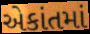
એકાંતમાં